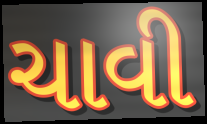
ચાવી